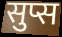
सुप्स